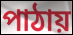
পাঠায়